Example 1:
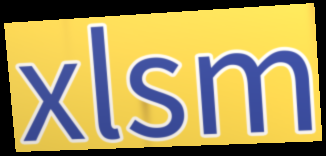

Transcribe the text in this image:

xlsm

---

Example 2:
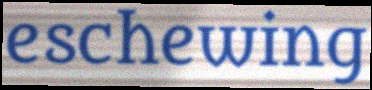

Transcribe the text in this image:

eschewing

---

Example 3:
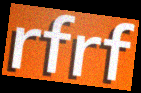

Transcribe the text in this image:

rfrf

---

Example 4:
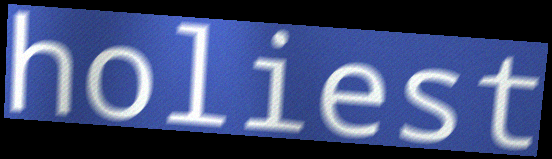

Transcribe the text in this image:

holiest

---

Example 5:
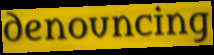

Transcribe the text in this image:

denouncing